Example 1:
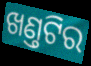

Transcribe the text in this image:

ଖଣ୍ତଟିର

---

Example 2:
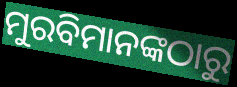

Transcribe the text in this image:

ମୁରବିମାନଙ୍କଠାରୁ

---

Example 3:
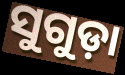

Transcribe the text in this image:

ସୁଗୁଡ଼ା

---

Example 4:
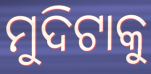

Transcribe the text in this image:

ମୁଦିଟାକୁ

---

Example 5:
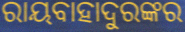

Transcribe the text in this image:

ରାୟବାହାଦୁରଙ୍କର